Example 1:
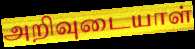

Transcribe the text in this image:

அறிவுடையாள்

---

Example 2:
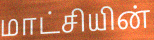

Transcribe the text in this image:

மாட்சியின்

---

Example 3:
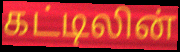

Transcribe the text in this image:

கட்டிலின்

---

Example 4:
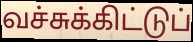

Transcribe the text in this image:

வச்சுக்கிட்டுப்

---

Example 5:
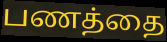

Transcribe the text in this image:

பணத்தை